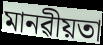
মানৱীয়তা